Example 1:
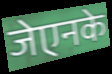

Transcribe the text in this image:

जेएनके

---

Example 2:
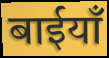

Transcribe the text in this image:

बाईयाँ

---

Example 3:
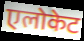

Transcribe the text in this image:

एलोकेट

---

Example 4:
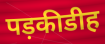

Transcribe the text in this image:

पड़कीडीह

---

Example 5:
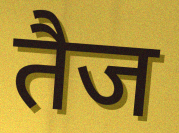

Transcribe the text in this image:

तैज